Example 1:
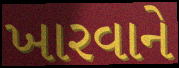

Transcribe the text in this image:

ખારવાને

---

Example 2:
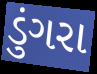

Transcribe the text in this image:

ડુંગરા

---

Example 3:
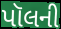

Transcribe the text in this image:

પૉલની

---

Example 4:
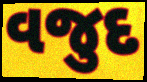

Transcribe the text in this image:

વજુદ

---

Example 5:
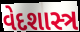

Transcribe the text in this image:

વેદશાસ્ત્ર